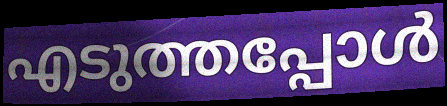
എടുത്തപ്പോൾ